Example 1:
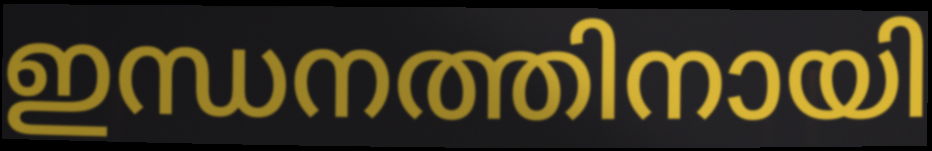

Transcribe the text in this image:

ഇന്ധനത്തിനായി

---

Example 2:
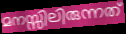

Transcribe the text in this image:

മനസ്സിലിരുന്നത്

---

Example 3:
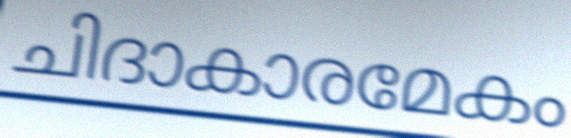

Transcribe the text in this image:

ചിദാകാരമേകം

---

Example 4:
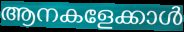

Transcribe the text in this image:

ആനകളേക്കാൾ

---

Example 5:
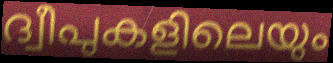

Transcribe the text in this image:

ദ്വീപുകളിലെയും